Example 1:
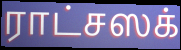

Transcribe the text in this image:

ராட்சஸக்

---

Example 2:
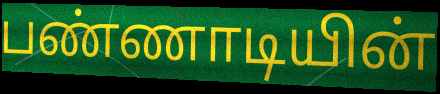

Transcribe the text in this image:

பண்ணாடியின்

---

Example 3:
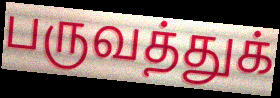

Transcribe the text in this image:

பருவத்துக்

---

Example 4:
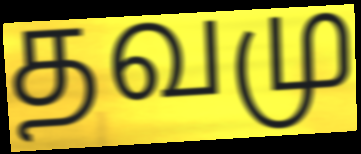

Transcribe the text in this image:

தவமு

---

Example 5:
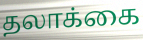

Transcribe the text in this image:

தலாக்கை